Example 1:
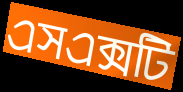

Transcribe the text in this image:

এসএক্সটি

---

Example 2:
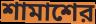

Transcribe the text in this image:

শামাশের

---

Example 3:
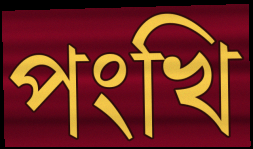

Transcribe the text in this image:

পংখি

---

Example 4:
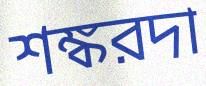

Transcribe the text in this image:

শঙ্করদা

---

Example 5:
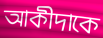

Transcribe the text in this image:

আকীদাকে